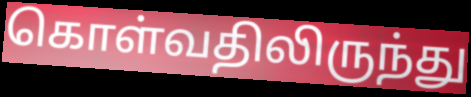
கொள்வதிலிருந்து